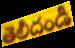
తెలీదండీ